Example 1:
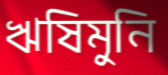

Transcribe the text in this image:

ঋষিমুনি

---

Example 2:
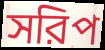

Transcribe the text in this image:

সরিপ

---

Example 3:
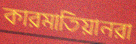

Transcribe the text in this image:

কারমাতিয়ানরা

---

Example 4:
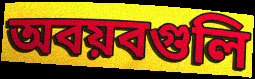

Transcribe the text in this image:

অবয়বগুলি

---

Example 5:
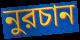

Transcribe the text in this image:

নুরচান